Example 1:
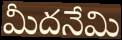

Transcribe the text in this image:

మీదనేమి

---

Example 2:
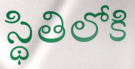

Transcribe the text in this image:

స్థితిలోకి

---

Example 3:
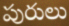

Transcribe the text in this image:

పురులు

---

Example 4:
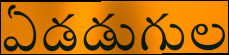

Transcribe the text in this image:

ఏడడుగుల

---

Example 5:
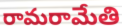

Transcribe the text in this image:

రామరామేతి